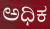
ಅಧಿಕ